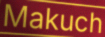
Makuch